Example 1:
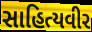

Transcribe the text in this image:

સાહિત્યવીર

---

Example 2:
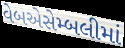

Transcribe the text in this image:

વેબએસેમ્બલીમાં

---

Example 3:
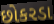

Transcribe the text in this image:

છોકરડા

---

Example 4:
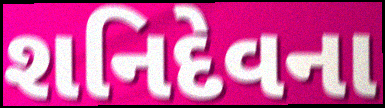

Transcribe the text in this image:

શનિદેવના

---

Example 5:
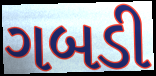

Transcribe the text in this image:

ગબડી